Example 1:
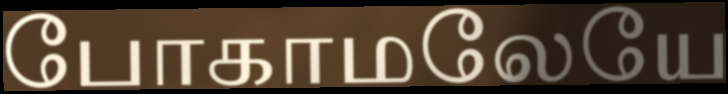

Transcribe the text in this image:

போகாமலேயே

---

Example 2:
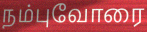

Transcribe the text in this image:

நம்புவோரை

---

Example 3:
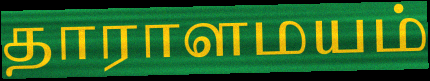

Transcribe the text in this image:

தாராளமயம்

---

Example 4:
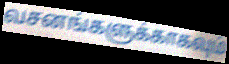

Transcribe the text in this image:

வசனங்களுக்காகவும்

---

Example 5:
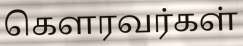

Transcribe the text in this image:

கௌரவர்கள்